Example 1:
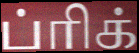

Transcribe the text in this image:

ப்ரிக்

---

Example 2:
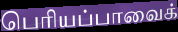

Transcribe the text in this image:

பெரியப்பாவைக்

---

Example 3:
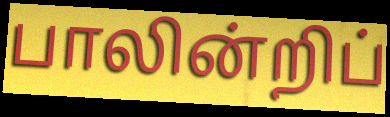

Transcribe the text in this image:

பாலின்றிப்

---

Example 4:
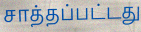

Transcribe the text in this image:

சாத்தப்பட்டது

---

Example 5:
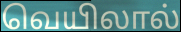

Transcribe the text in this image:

வெயிலால்